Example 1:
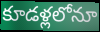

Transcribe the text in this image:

కూడళ్లలోనూ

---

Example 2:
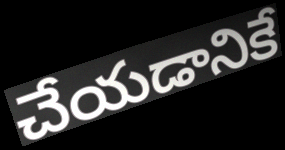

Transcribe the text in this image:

చేయడానికే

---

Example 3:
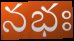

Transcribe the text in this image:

నభః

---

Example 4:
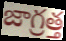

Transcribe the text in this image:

జాగ్రత్త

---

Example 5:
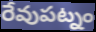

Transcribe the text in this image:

రేవుపట్నం